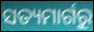
ସତ୍ୟମାର୍ଗରୁ